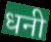
धनी